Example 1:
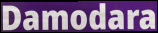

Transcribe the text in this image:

Damodara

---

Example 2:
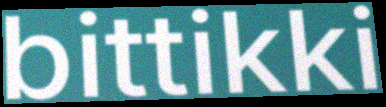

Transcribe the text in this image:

bittikki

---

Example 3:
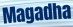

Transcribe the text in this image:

Magadha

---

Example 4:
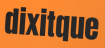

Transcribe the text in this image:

dixitque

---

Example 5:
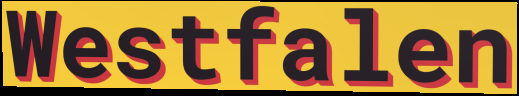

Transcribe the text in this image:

Westfalen